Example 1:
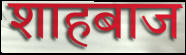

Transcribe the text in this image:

शाहबाज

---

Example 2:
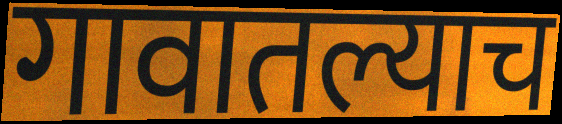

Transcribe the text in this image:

गावातल्याच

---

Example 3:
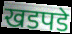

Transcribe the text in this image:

खडपडे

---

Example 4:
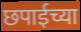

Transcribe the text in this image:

छपाईच्या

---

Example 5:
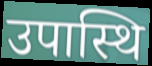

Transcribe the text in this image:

उपास्थि